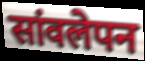
सांवलेपन